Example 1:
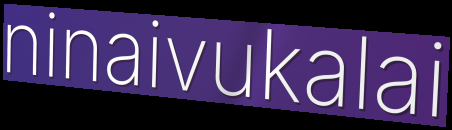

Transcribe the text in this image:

ninaivukalai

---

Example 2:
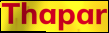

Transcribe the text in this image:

Thapar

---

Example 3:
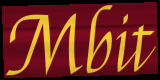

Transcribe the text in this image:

Mbit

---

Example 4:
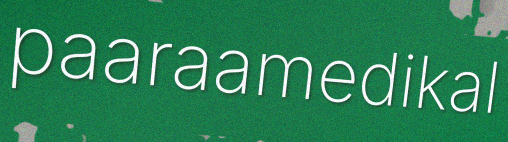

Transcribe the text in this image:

paaraamedikal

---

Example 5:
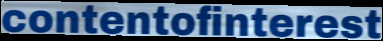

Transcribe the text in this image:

contentofinterest